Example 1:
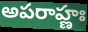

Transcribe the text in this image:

అపరాహ్ణః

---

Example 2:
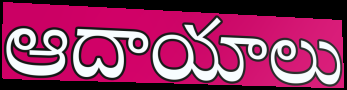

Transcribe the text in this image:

ఆదాయాలు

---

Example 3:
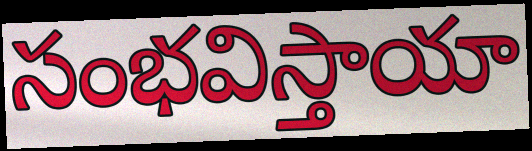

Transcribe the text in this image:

సంభవిస్తాయా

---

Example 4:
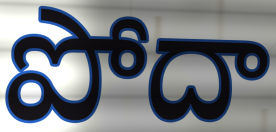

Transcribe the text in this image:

పోదా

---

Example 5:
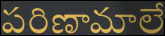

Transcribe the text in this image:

పరిణామాలే